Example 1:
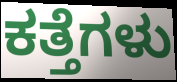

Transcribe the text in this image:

ಕತ್ತೆಗಳು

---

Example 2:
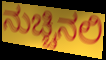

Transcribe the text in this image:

ನುಚ್ಚಿನಲಿ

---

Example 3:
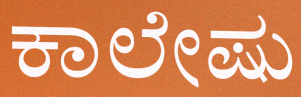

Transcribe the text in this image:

ಕಾಲೇಷು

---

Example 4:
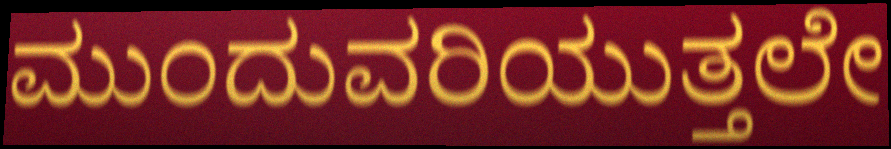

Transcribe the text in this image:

ಮುಂದುವರಿಯುತ್ತಲೇ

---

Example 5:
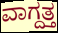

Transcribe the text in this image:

ವಾಗ್ದತ್ತ